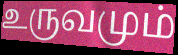
உருவமும்